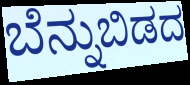
ಬೆನ್ನುಬಿಡದ